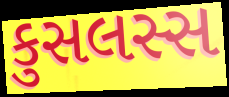
કુસલસ્સ